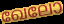
ഖേലോ